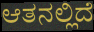
ಆತನಲ್ಲಿದೆ